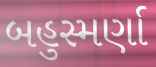
બહુસ્મર્ણા